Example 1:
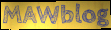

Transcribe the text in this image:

MAWblog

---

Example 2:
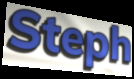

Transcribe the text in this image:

Steph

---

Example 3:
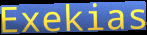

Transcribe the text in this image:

Exekias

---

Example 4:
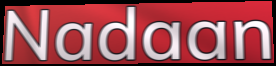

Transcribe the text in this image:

Nadaan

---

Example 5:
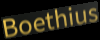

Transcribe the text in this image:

Boethius